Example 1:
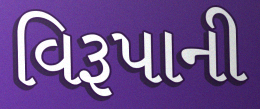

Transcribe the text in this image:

વિરૂપાની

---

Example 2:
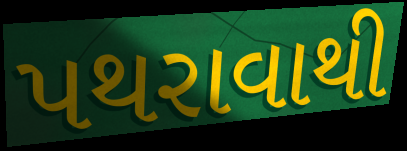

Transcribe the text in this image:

પથરાવાથી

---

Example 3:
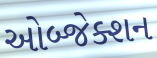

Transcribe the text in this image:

ઓબ્જેક્શન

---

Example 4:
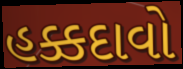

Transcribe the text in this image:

હક્કદાવો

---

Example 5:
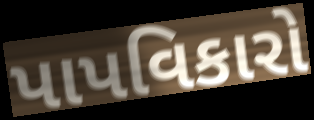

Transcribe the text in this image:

પાપવિકારો